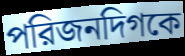
পরিজনদিগকে